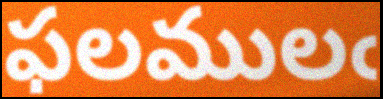
ఫలములఁ